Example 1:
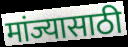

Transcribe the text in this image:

मांज्यासाठी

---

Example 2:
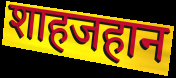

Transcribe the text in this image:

शाहजहान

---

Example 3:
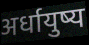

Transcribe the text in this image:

अर्धायुष्य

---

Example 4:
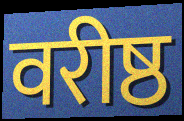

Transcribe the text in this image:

वरीष्ठ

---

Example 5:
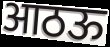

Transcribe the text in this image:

आठऊ